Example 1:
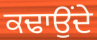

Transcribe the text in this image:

ਕਢਾਉਂਦੇ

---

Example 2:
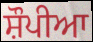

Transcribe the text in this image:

ਸ਼ੌਪੀਆ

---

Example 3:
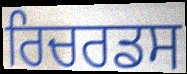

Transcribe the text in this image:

ਰਿਚਰਡਸ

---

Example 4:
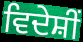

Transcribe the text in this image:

ਵਿਦੇਸ਼ੀਂ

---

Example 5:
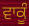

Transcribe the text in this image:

ਵਾਕੂੰ